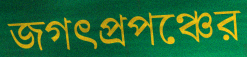
জগৎপ্রপঞ্চের